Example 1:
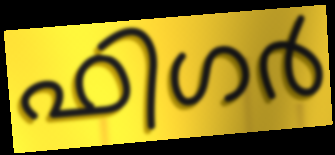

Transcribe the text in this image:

ഫിഗർ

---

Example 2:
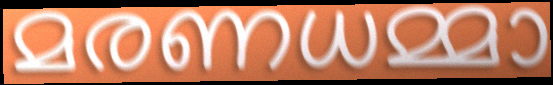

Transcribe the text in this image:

മരണധമ്മാ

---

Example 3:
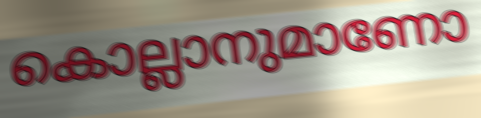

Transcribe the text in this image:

കൊല്ലാനുമാണോ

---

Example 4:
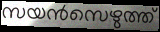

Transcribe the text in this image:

സയൻസെഴുത്ത്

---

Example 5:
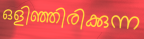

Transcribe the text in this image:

ഒളിഞ്ഞിരിക്കുന്ന